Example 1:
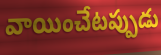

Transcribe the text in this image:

వాయించేటప్పుడు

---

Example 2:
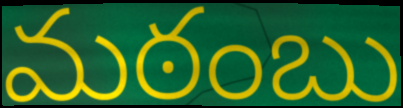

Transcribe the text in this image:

మఠంబు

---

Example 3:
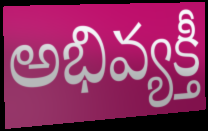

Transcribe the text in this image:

అభివ్యక్తీ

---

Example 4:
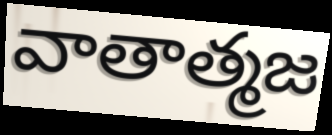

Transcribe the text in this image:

వాతాత్మజ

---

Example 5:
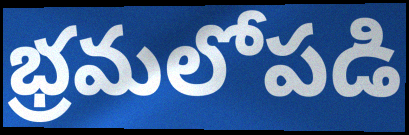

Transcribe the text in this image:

భ్రమలోపడి